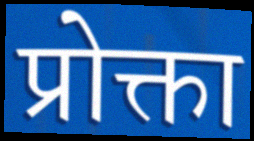
प्रोक्ता